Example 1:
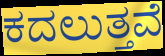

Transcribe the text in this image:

ಕದಲುತ್ತವೆ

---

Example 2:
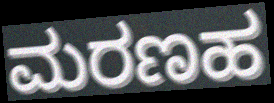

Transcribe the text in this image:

ಮರಣಹ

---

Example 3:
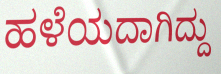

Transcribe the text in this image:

ಹಳೆಯದಾಗಿದ್ದು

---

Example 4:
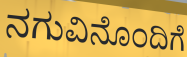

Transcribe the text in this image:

ನಗುವಿನೊಂದಿಗೆ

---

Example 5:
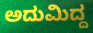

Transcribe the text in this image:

ಅದುಮಿದ್ದ